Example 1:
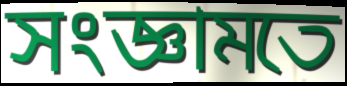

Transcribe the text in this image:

সংজ্ঞামতে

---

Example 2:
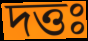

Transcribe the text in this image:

দত্তঃ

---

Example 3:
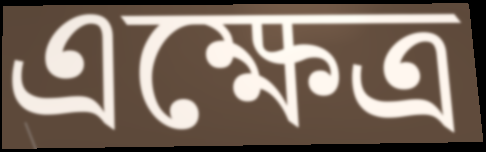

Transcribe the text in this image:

এক্ষেত্র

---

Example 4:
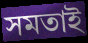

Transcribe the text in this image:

সমতাই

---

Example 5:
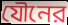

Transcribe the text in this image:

যৌনের